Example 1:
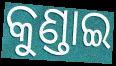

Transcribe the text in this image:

କୁଣ୍ଡାଇ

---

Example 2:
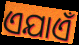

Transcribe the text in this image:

ଏଯାଏଁ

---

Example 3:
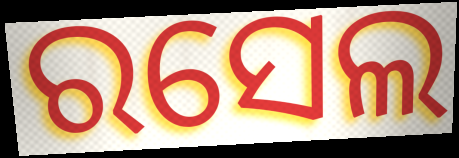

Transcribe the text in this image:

ରସେଲ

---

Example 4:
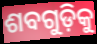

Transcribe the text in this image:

ଶବଗୁଡ଼ିକୁ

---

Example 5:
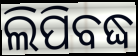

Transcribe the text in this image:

ଲିପିବଦ୍ଧ